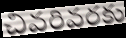
చివరివరకు